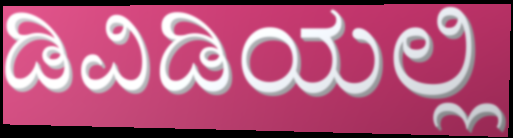
ಡಿವಿಡಿಯಲ್ಲಿ